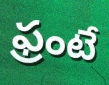
ఫ్రంటే